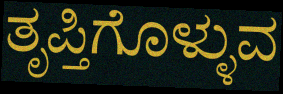
ತೃಪ್ತಿಗೊಳ್ಳುವ